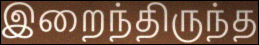
இறைந்திருந்த